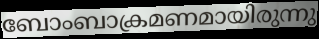
ബോംബാക്രമണമായിരുന്നു